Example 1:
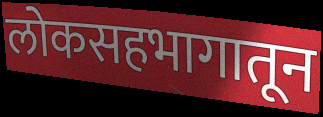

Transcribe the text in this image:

लोकसहभागातून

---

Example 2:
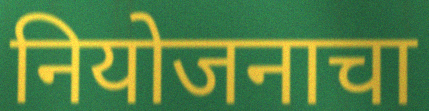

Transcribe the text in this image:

नियोजनाचा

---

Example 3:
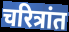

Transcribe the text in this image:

चरित्रांत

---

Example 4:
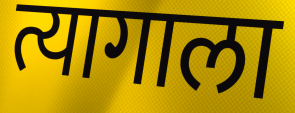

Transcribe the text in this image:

त्यागाला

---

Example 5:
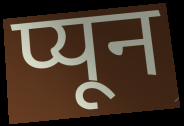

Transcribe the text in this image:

प्यून